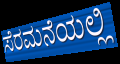
ಸೆರಮನೆಯಲ್ಲಿ